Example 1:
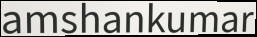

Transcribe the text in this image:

amshankumar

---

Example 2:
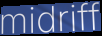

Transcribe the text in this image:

midriff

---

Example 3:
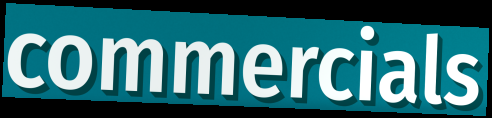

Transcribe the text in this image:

commercials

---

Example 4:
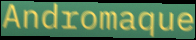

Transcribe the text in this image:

Andromaque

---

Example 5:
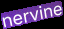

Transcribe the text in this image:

nervine